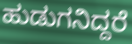
ಹುಡುಗನಿದ್ದರೆ